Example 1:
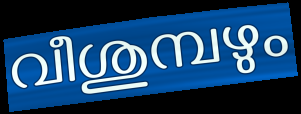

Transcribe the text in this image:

വീശുമ്പഴും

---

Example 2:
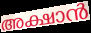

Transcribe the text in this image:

അക്ഷാൻ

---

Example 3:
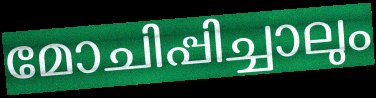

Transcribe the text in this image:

മോചിപ്പിച്ചാലും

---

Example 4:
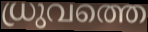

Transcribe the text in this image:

ധ്രുവത്തെ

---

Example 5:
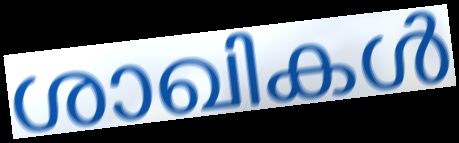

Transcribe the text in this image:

ശാഖികൾ